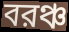
বরঞ্চ